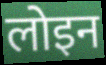
लोइन